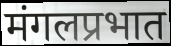
मंगलप्रभात